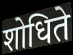
शोधिते